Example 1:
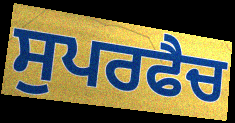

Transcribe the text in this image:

ਸੁਪਰਫੈਚ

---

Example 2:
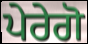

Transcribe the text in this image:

ਪੇਰੇਗੋ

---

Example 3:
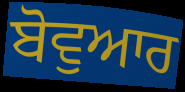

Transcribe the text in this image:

ਬੋਵੁਆਰ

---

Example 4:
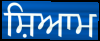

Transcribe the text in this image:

ਸ਼ਿਆਮ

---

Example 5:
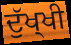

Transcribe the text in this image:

ਦੁੱਖ੍ਖੀ